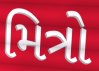
મિત્રો